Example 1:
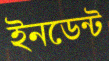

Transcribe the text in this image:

ইনডেন্ট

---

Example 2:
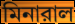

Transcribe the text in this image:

মিনারাল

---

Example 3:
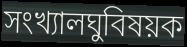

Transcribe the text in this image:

সংখ্যালঘুবিষয়ক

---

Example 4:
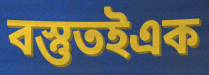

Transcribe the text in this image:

বস্তুতইএক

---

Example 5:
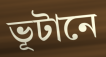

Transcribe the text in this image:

ভূটানে